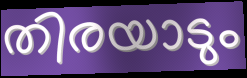
തിരയാടും